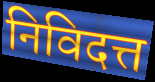
निविदत्त